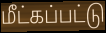
மீட்கப்பட்டு